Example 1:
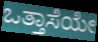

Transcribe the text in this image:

ಒತ್ತಾಸೆಯೇ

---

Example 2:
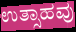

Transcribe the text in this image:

ಉತ್ಸಾಹವು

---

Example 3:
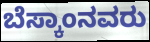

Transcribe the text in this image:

ಬೆಸ್ಕಾಂನವರು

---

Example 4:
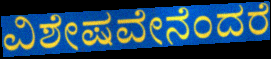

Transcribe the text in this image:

ವಿಶೇಷವೇನೆಂದರೆ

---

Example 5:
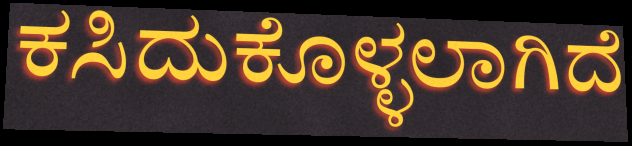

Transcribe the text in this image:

ಕಸಿದುಕೊಳ್ಳಲಾಗಿದೆ